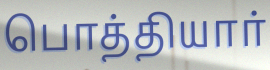
பொத்தியார்